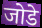
जोडे